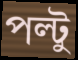
পল্টু